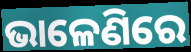
ଭାଳେଣିରେ